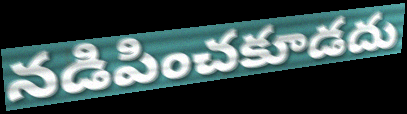
నడిపించకూడదు